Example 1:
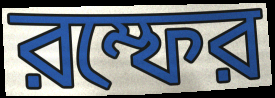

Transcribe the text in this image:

রম্ফের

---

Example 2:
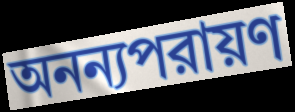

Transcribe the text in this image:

অনন্যপরায়ণ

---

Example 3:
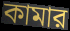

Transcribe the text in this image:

কামার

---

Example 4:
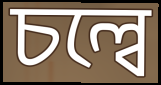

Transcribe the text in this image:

চল্বে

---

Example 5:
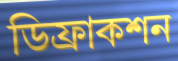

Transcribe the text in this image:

ডিফ্রাকশন